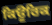
ਕਿਊਰਿਕ